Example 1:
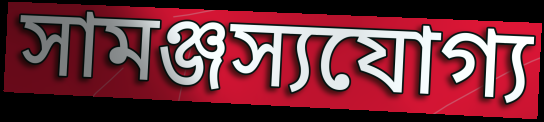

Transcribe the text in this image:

সামঞ্জস্যযোগ্য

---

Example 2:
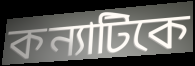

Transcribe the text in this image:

কন্যাটিকে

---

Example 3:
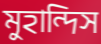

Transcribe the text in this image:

মুহান্দিস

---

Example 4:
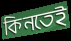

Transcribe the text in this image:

কিনতেই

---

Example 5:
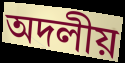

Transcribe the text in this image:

অদলীয়